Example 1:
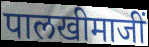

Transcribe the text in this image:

पालखीमाजीं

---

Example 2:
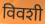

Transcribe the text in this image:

विवशी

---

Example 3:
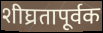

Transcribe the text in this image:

शीघ्रतापूर्वक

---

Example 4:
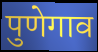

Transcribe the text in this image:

पुणेगाव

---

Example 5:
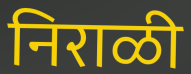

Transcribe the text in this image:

निराळी